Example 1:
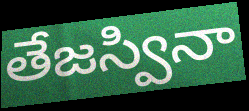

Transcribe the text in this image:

తేజస్వినా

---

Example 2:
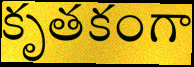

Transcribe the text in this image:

కృతకంగా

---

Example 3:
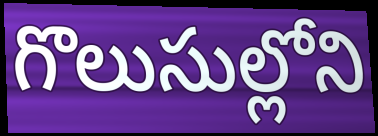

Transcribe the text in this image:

గొలుసుల్లోని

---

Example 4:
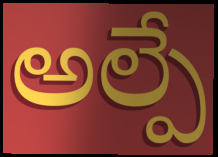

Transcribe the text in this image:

అల్పే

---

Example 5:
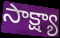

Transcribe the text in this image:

సాక్ష్యా